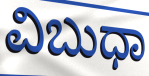
ವಿಬುಧಾ